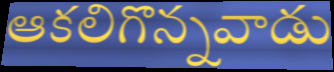
ఆకలిగొన్నవాడు